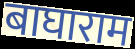
बाघाराम